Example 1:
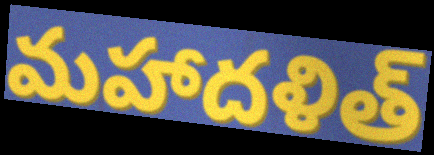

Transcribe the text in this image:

మహాదళిత్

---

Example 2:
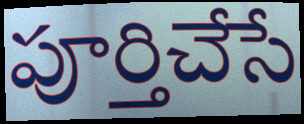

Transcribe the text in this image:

పూర్తిచేసే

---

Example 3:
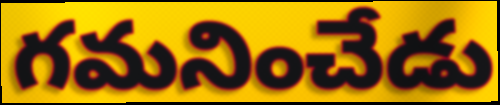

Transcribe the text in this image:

గమనించేడు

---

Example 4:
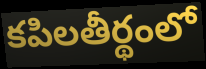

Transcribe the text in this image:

కపిలతీర్థంలో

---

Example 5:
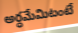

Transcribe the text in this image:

అర్ధమేమిటంటే